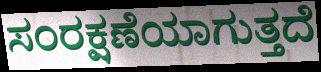
ಸಂರಕ್ಷಣೆಯಾಗುತ್ತದೆ